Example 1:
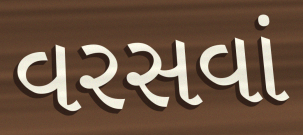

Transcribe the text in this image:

વરસવાં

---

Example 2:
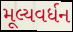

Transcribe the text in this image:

મૂલ્યવર્ધન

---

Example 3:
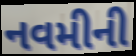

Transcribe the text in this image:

નવમીની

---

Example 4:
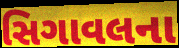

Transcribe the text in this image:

સિગાવલના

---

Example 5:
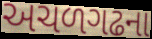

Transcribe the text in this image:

અચળગઢના